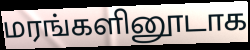
மரங்களினூடாக